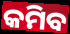
କମିବ